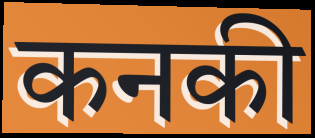
कनकी